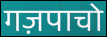
गज़पाचो